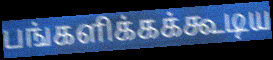
பங்களிக்கக்கூடிய